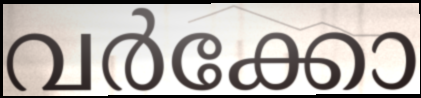
വർക്കോ